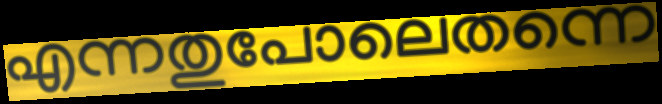
എന്നതുപോലെതന്നെ